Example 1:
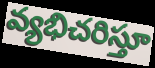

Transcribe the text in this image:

వ్యభిచరిస్తూ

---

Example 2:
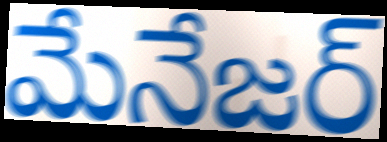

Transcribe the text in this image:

మేనేజర్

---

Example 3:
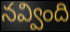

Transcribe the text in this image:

నవ్వింది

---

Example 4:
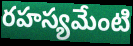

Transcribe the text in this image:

రహస్యమేంటి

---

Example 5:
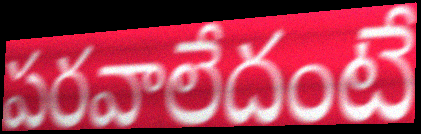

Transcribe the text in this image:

పరవాలేదంటే